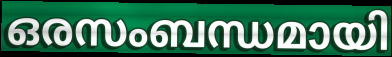
ഒരസംബന്ധമായി